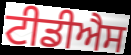
ਟੀਡੀਐਸ